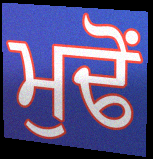
ਮੁਢੋਂ